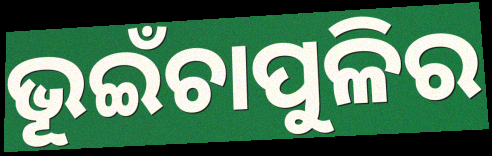
ଭୂଇଁଚାପୁଳିର